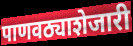
पाणवठ्याशेजारी